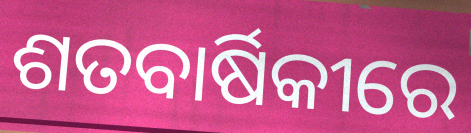
ଶତବାର୍ଷିକୀରେ